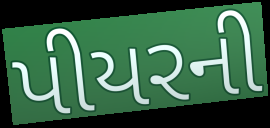
પીયરની